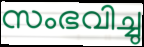
സംഭവിച്ചു